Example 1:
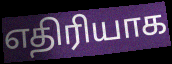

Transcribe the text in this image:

எதிரியாக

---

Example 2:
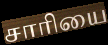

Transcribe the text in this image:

சாரியை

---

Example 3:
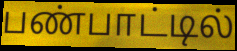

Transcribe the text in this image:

பண்பாட்டில்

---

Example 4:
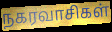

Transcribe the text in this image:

நகரவாசிகள்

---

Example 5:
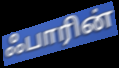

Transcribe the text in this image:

ஃபாரின்